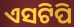
ଏସଟିପି